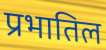
प्रभातिल